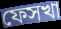
ফেসখা